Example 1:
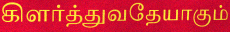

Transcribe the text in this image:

கிளர்த்துவதேயாகும்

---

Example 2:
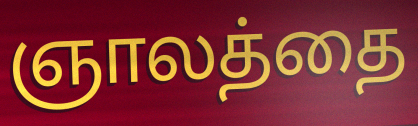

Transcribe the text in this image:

ஞாலத்தை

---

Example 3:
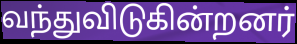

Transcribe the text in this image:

வந்துவிடுகின்றனர்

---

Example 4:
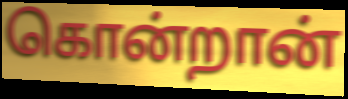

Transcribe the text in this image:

கொன்றான்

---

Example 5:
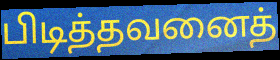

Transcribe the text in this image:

பிடித்தவனைத்